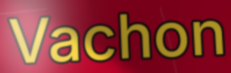
Vachon